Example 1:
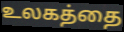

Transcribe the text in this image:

உலகத்தை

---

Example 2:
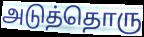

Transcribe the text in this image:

அடுத்தொரு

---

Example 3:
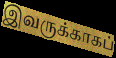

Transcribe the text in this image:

இவருக்காகப்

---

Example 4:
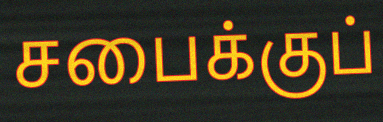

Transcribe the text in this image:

சபைக்குப்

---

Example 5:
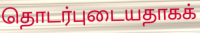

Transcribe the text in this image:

தொடர்புடையதாகக்